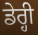
ਡੇਰ੍ਹੀ